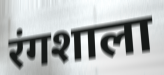
रंगशाला